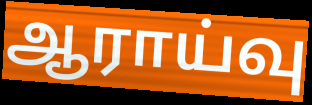
ஆராய்வு